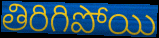
తిరిగిపోయి